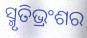
ସ୍ମୃତିଭ୍ରଂଶର